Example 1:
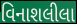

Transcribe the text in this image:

વિનાશલીલા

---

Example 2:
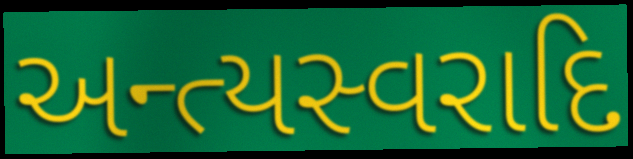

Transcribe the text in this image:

અન્ત્યસ્વરાદિ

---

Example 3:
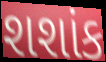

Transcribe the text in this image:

શશાંક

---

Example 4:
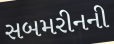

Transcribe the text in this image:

સબમરીનની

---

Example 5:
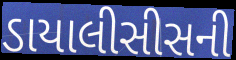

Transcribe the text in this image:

ડાયાલીસીસની